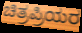
ಚಿತ್ರಪ್ರಿಯರ